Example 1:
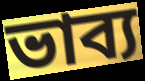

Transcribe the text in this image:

ভাব্য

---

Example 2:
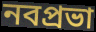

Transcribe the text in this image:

নবপ্রভা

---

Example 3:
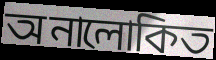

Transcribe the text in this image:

অনালোকিত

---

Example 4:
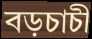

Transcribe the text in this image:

বড়চাচী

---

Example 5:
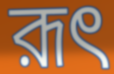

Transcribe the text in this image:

রূৎ